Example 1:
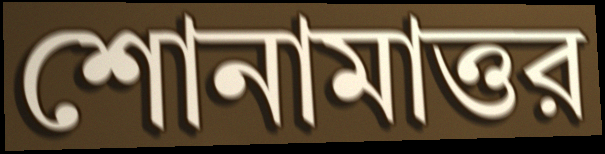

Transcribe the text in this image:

শোনামাত্তর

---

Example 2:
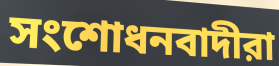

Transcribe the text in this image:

সংশোধনবাদীরা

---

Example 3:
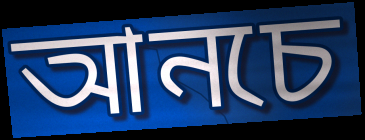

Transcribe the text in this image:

আনচে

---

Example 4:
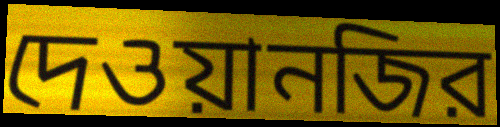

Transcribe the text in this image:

দেওয়ানজির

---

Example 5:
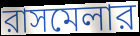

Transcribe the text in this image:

রাসমেলার